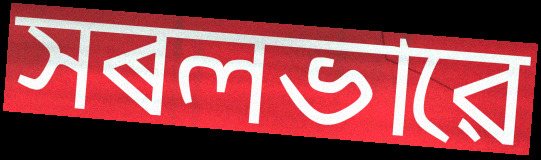
সৰলভাৱে